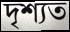
দৃশ্যত